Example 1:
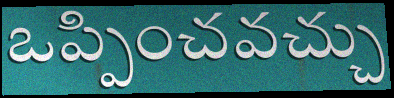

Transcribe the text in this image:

ఒప్పించవచ్చు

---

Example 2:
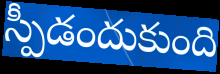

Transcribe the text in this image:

స్పీడందుకుంది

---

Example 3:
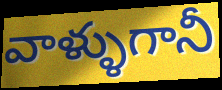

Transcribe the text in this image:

వాళ్ళుగానీ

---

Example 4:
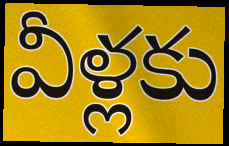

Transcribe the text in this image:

వీళ్లకు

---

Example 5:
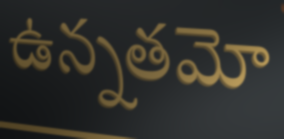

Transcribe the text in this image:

ఉన్నతమో